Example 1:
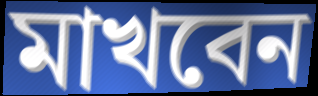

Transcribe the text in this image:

মাখবেন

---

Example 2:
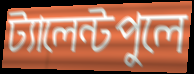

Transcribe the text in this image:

ট্যালেন্টপুলে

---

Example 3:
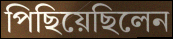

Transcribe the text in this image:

পিছিয়েছিলেন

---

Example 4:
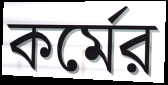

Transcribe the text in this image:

কর্মের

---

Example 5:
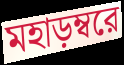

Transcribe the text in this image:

মহাড়ম্বরে